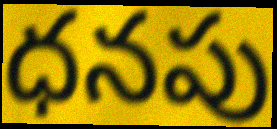
ధనపు